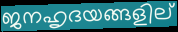
ജനഹൃദയങ്ങളില്